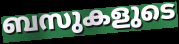
ബസുകളുടെ